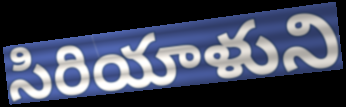
సిరియాళుని